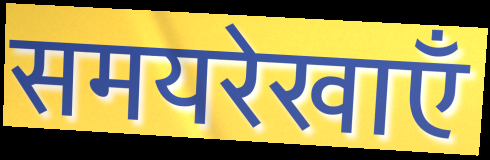
समयरेखाएँ